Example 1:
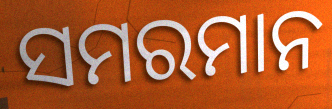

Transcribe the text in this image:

ସମରମାନ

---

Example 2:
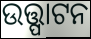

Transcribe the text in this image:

ଉତ୍ତ୍ପାଟନ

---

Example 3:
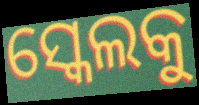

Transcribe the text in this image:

ସ୍କେଲକୁ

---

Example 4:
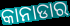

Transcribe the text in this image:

କାନାଡାର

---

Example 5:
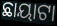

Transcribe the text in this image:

ଛାୟାଟା